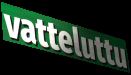
vatteluttu